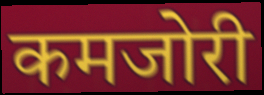
कमजोरी